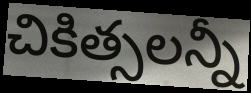
చికిత్సలన్నీ